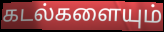
கடல்களையும்